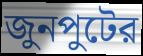
জুনপুটের